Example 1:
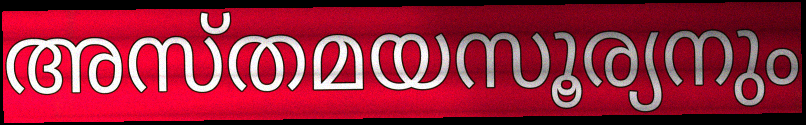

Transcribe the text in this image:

അസ്തമയസൂര്യനും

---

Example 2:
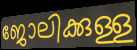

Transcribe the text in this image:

ജോലിക്കുള്ള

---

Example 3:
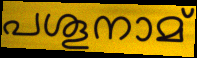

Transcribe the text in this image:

പശൂനാമ്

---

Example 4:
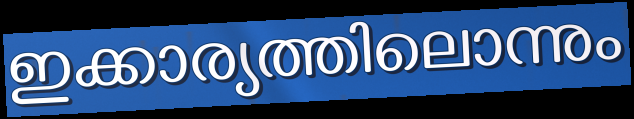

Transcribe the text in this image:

ഇക്കാര്യത്തിലൊന്നും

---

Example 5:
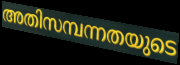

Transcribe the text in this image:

അതിസമ്പന്നതയുടെ